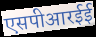
एसपीआरईई